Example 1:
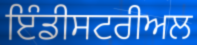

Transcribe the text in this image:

ਇੰਡੀਸਟਰੀਅਲ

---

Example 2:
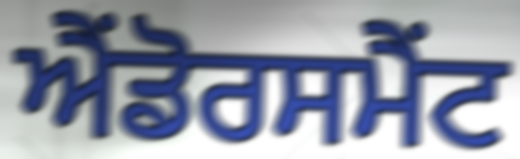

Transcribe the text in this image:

ਐਂਡੋਰਸਮੈਂਟ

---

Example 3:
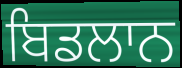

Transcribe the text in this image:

ਬਿਡਲਾਨ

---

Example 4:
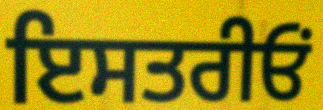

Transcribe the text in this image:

ਇਸਤਰੀਓਂ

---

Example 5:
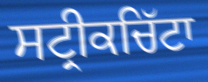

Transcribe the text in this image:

ਸਟ੍ਰੀਕਚਿੱਟਾ